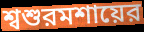
শ্বশুরমশায়ের